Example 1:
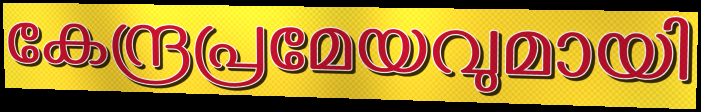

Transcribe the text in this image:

കേന്ദ്രപ്രമേയവുമായി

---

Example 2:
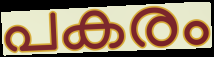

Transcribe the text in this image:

പകരം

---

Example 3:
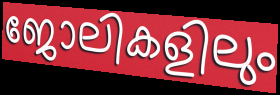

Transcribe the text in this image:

ജോലികളിലും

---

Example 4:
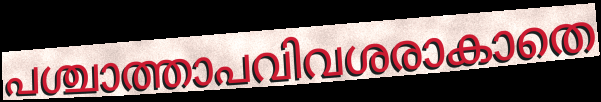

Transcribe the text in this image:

പശ്ചാത്താപവിവശരാകാതെ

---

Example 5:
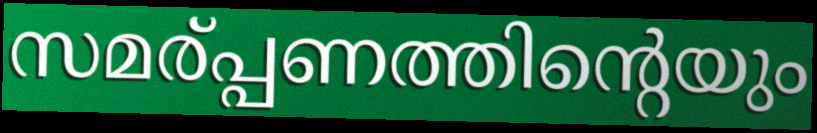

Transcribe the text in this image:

സമര്പ്പണത്തിന്റെയും